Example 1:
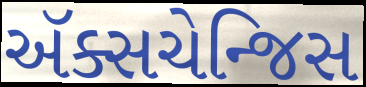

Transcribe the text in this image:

ઍક્સચેન્જિસ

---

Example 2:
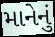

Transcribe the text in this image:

માનેનું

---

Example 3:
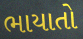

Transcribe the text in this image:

ભાયાતો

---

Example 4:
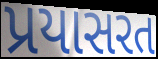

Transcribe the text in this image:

પ્રયાસરત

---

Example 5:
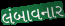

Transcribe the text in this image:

લંબાવનાર